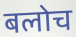
बलोच